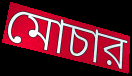
মোচার